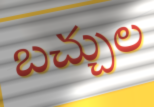
బచ్చుల